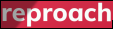
reproach